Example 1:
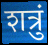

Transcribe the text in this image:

शत्रुं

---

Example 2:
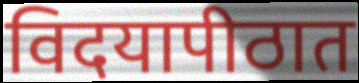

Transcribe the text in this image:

विदयापीठात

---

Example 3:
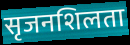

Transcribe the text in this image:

सृजनशिलता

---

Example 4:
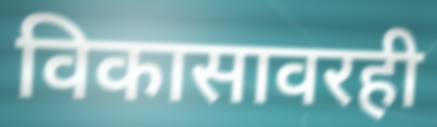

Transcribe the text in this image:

विकासावरही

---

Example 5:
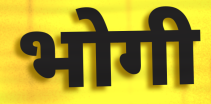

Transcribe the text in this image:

भोगी